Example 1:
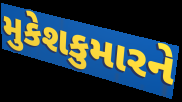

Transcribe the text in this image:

મુકેશકુમારને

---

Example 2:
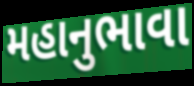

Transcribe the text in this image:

મહાનુભાવા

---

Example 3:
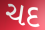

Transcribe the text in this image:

ચદ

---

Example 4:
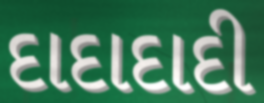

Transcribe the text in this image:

દાદાદાદી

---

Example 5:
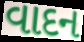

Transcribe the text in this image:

વાદન